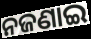
ନଜଣାଇ